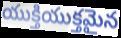
యుక్తియుక్తమైన